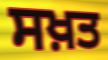
ਸਖ਼ਤ